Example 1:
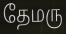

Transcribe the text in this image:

தேமரு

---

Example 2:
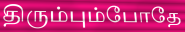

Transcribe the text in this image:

திரும்பும்போதே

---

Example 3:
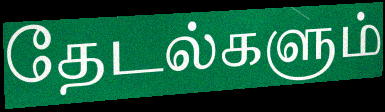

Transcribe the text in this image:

தேடல்களும்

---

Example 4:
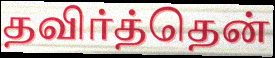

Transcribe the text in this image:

தவிர்த்தென்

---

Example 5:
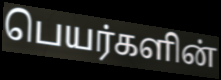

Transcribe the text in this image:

பெயர்களின்